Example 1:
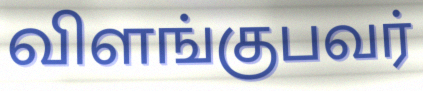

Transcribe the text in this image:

விளங்குபவர்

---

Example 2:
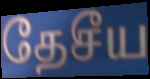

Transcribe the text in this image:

தேசீய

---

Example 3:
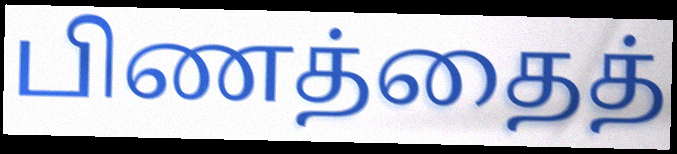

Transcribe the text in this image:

பிணத்தைத்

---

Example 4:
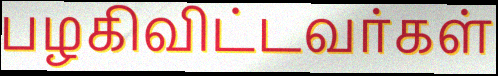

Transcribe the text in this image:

பழகிவிட்டவர்கள்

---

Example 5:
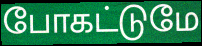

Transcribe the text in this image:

போகட்டுமே